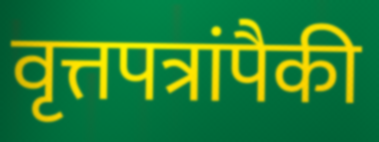
वृत्तपत्रांपैकी